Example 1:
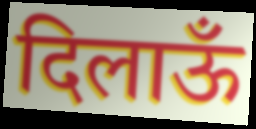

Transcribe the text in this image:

दिलाऊँ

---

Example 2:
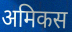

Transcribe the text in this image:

अमिकस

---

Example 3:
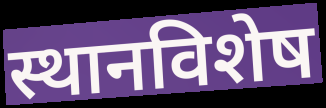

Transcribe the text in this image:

स्थानविशेष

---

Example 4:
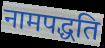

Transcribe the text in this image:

नामपद्धति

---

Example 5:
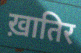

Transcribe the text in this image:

ख़ातिर